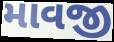
માવજી